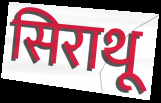
सिराथू